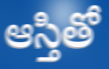
ఆస్తితో